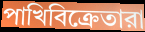
পাখিবিক্রেতারা